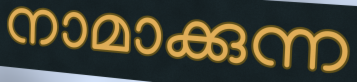
നാമാക്കുന്ന